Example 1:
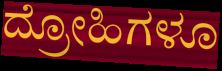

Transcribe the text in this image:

ದ್ರೋಹಿಗಳೂ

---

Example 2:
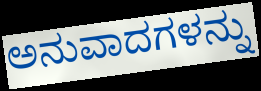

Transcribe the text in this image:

ಅನುವಾದಗಳನ್ನು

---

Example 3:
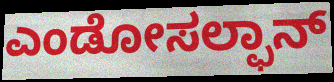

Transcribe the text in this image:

ಎಂಡೋಸಲ್ಫಾನ್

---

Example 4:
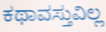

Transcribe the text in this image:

ಕಥಾವಸ್ತುವಿಲ್ಲ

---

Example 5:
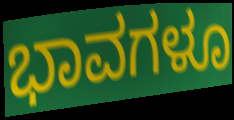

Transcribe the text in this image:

ಭಾವಗಳೂ